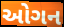
ઓગન